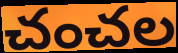
చంచల